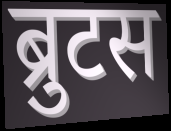
ब्रुटस